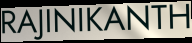
RAJINIKANTH